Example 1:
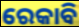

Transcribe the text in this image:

ରେକାବି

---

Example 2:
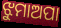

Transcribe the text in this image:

ଝୁମାଅପା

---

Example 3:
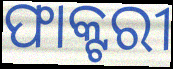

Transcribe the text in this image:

ଫାକ୍ଟରୀ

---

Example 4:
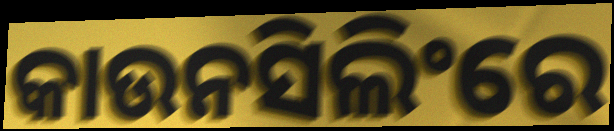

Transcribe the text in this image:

କାଉନସିଲିଂରେ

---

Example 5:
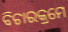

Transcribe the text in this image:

ବିଚାରକ୍ରମେ